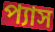
প্যাস